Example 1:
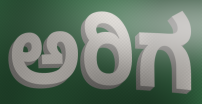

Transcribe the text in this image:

ಅರಿಗ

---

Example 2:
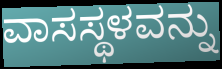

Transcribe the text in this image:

ವಾಸಸ್ಥಳವನ್ನು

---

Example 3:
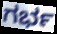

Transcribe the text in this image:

ಗರ್ಭ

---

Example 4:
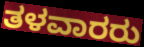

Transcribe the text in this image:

ತಳವಾರರು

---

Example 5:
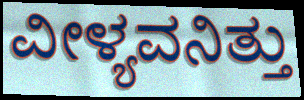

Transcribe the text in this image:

ವೀಳ್ಯವನಿತ್ತು